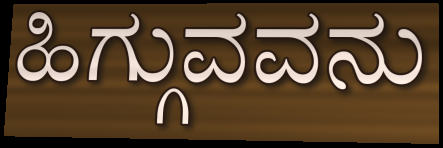
ಹಿಗ್ಗುವವನು